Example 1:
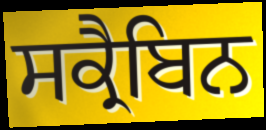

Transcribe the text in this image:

ਸਕ੍ਰੈਬਿਨ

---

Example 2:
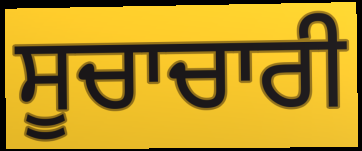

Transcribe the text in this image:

ਸੂਚਾਚਾਰੀ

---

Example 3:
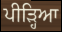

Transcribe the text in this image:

ਪੀੜ੍ਹਿਆ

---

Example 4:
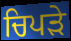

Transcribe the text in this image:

ਚਿਪੜੇ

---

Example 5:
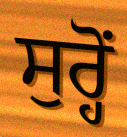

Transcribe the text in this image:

ਸੁਰ੍ਹੋਂ